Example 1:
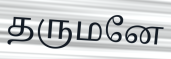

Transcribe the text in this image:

தருமனே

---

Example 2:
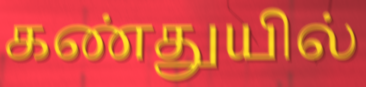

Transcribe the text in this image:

கண்துயில்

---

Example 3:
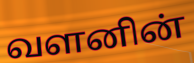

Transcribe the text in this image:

வளனின்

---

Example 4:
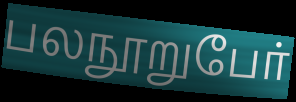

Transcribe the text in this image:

பலநூறுபேர்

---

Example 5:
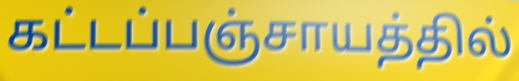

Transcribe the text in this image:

கட்டப்பஞ்சாயத்தில்